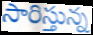
సారిస్తున్న